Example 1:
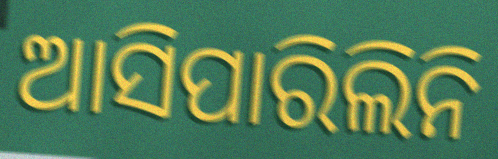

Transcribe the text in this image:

ଆସିପାରିଲିନି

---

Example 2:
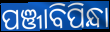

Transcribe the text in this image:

ପଞ୍ଜାବିପିନ୍ଧା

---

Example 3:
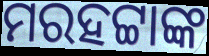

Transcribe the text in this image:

ମରହଟ୍ଟାଙ୍କ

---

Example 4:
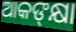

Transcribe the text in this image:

ଆକଙ୍‌କ୍ଷା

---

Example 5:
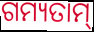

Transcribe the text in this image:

ଗମ୍ୟତାମ୍